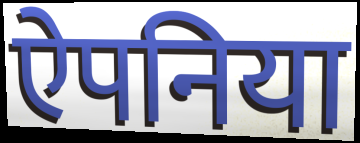
ऐपनिया